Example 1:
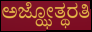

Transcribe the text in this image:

ಅಜ್ಝೋತ್ಥರತಿ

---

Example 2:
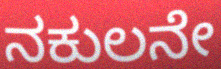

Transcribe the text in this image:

ನಕುಲನೇ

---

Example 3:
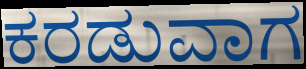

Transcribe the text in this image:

ಕರಡುವಾಗ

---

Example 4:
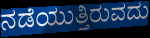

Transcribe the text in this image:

ನಡೆಯುತ್ತಿರುವದು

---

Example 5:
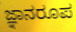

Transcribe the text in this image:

ಜ್ಞಾನರೂಪ